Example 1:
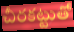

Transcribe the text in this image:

చీరకట్టుతో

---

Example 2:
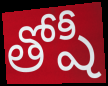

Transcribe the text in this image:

తోషీ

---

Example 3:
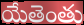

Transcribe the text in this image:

యేతెంతు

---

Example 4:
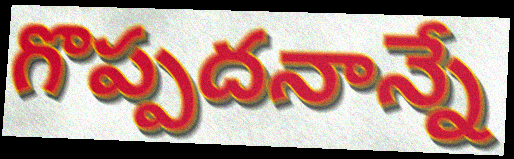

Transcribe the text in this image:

గొప్పదనాన్నే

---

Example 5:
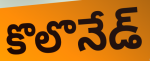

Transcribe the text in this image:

కొలొనేడ్